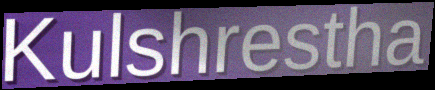
Kulshrestha